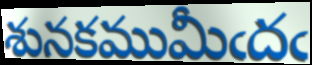
శునకముమీఁదఁ